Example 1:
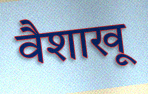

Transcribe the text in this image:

वैशाखू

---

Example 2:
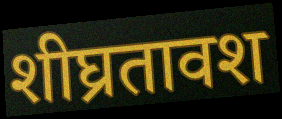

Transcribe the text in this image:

शीघ्रतावश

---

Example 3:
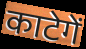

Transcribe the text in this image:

काटेगें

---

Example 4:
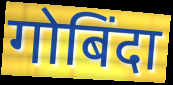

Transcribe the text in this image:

गोबिंदा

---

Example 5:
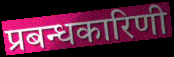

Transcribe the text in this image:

प्रबन्धकारिणी